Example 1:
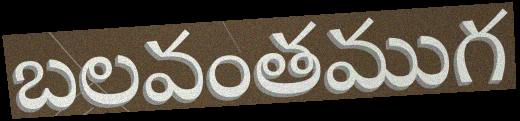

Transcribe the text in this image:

బలవంతముగ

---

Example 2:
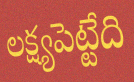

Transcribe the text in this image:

లక్ష్యపెట్టేది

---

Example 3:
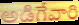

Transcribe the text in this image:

అడిగేవారి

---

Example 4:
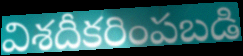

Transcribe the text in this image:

విశదీకరింపబడి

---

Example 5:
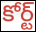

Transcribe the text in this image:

కోర్ట్